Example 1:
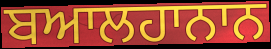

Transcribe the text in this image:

ਬਆਲਹਾਨਾਨ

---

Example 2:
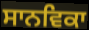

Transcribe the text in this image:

ਸਾਨਵਿਕਾ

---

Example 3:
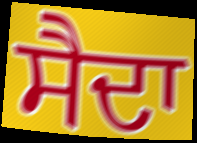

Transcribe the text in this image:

ਸੈਦਾ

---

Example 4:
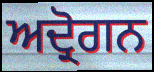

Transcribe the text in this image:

ਅਦ੍ਰੋਗਨ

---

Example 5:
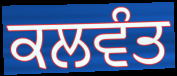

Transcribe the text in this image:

ਕਲਵੰਤ